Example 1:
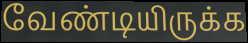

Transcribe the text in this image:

வேண்டியிருக்க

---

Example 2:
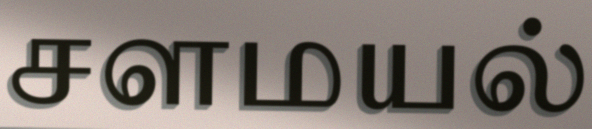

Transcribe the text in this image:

சளமயல்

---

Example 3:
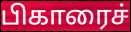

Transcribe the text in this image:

பிகாரைச்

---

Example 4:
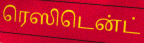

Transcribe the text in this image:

ரெஸிடென்ட்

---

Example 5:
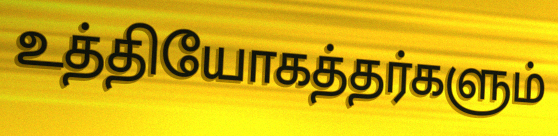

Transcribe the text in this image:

உத்தியோகத்தர்களும்